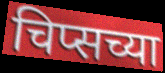
चिप्सच्या